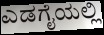
ಎಡಗೈಯಲ್ಲಿ